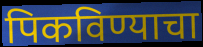
पिकविण्याचा